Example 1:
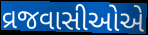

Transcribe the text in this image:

વ્રજવાસીઓએ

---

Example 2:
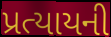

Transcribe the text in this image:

પ્રત્યાયની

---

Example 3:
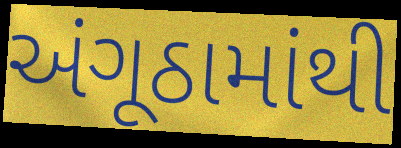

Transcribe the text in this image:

અંગૂઠામાંથી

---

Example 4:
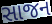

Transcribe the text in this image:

સાજન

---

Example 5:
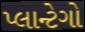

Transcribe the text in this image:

પ્લાન્ટેગો